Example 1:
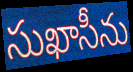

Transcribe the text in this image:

సుఖాసీను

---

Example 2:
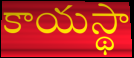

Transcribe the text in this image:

కాయస్థా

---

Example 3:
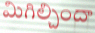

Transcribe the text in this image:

మిగిల్చిందా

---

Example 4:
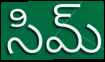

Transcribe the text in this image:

సిమ్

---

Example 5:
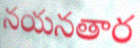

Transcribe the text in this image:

నయనతార